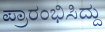
ಪ್ರಾರಂಭಿಸಿದ್ದು